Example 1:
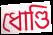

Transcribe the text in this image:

ধোণ্ডি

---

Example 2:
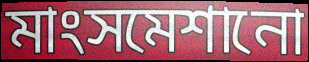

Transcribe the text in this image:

মাংসমেশানো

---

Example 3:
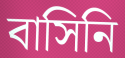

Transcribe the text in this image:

বাসিনি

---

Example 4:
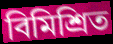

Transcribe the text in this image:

বিমিশ্রিত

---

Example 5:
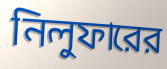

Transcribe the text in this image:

নিলুফারের